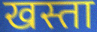
खस्ता